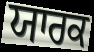
ਯਾਰਕ